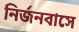
নির্জনবাসে